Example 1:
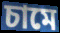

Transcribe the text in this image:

চামে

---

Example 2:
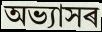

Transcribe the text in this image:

অভ্যাসৰ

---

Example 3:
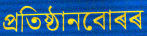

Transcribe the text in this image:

প্ৰতিষ্ঠানবোৰৰ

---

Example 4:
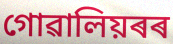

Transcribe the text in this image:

গোৱালিয়ৰৰ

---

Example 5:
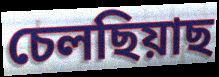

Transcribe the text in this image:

চেলছিয়াছ